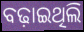
ବଢ଼ାଇଥିଲି